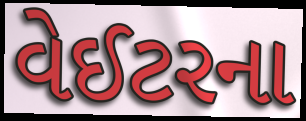
વેઈટરના